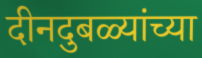
दीनदुबळ्यांच्या